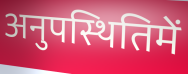
अनुपस्थितिमें